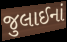
જુલાઈનાં